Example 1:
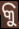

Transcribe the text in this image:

କୁ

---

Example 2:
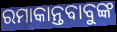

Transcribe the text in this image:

ରମାକାନ୍ତବାବୁଙ୍କ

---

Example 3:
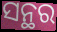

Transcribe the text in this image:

ସନ୍ଥର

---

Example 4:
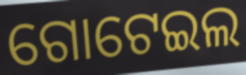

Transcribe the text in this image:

ଗୋଟେଇଲ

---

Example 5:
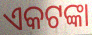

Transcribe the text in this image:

ଏକଟଙ୍କା